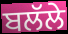
ਬਲੱਲੇ